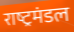
राष्ट्रमंडल